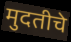
मुदतीचे